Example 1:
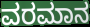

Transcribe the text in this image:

ವರಮಾನ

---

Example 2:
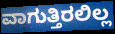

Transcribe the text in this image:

ವಾಗುತ್ತಿರಲಿಲ್ಲ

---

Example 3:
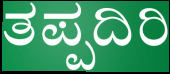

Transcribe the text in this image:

ತಪ್ಪದಿರಿ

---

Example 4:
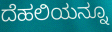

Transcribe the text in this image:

ದೆಹಲಿಯನ್ನೂ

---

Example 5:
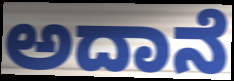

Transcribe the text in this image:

ಅದಾನೆ